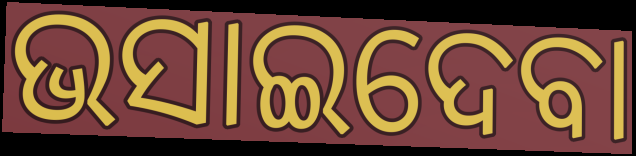
ଭସାଇଦେବା